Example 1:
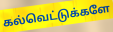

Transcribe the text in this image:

கல்வெட்டுக்களே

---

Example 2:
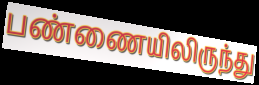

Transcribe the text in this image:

பண்ணையிலிருந்து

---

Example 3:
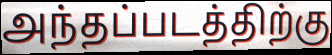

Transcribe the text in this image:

அந்தப்படத்திற்கு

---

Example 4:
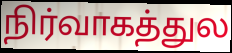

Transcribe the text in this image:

நிர்வாகத்துல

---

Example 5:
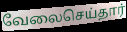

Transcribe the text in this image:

வேலைசெய்தார்